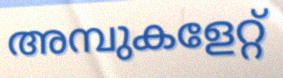
അമ്പുകളേറ്റ്